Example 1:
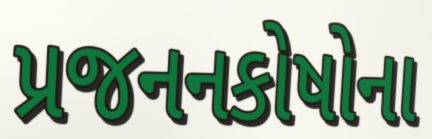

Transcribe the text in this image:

પ્રજનનકોષોના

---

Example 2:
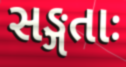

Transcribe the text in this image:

સઙ્ગતાઃ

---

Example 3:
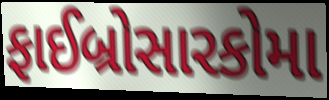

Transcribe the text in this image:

ફાઈબ્રોસારકોમા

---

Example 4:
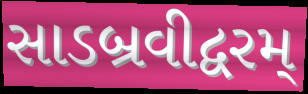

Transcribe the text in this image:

સાડબ્રવીદ્વરમ્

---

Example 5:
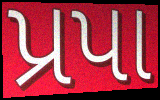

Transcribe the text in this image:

પ્રપા